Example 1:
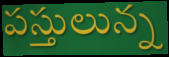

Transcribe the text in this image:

పస్తులున్న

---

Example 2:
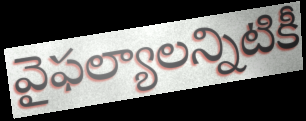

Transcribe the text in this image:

వైఫల్యాలన్నిటికీ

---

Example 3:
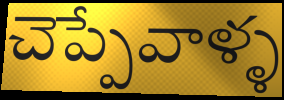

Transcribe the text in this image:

చెప్పేవాళ్ళ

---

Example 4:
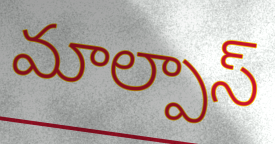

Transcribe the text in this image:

మాల్పాస్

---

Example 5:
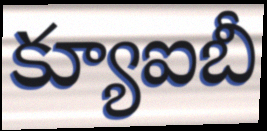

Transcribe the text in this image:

క్యూఐబీ